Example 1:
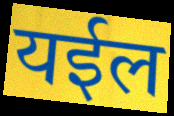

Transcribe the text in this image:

यईल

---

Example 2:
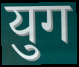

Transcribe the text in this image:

युग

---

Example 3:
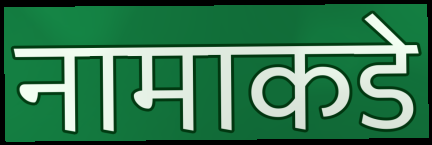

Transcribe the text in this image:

नामाकडे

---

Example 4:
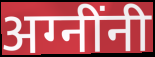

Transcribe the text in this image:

अग्नींनी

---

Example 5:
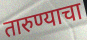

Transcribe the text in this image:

तारुण्याचा